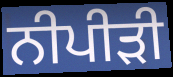
ਨੀਪੀੜੀ